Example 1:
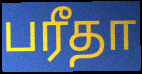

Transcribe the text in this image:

பரீதா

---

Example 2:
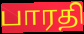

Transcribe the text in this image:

பாரதி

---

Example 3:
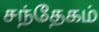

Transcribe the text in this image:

சந்தேகம்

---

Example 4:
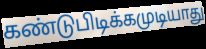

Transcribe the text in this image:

கண்டுபிடிக்கமுடியாது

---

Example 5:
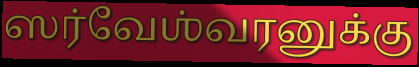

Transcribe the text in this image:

ஸர்வேஶ்வரனுக்கு